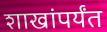
शाखांपर्यंत